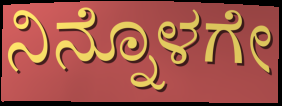
ನಿನ್ನೊಳಗೇ